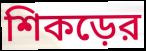
শিকড়ের